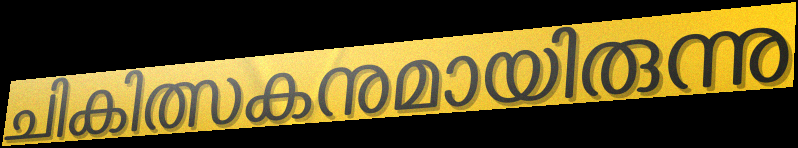
ചികിത്സകനുമായിരുന്നു